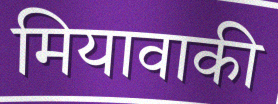
मियावाकी